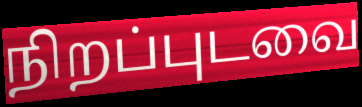
நிறப்புடவை